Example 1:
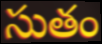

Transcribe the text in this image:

సుతం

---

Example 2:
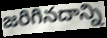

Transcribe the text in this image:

జరిగినదాన్ని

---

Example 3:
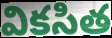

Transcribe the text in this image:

వికసిత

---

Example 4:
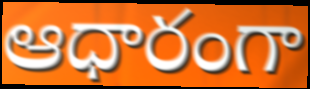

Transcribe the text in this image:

ఆధారంగా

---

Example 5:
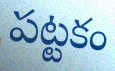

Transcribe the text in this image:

పట్టకం